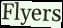
Flyers